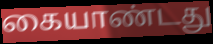
கையாண்டது